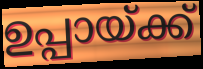
ഉപ്പായ്ക്ക്